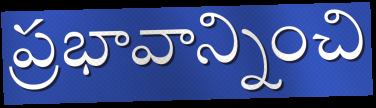
ప్రభావాన్నించి